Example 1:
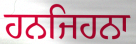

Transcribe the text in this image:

ਹਨਜਿਹਨਾ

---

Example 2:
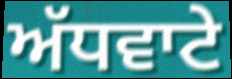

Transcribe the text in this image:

ਅੱਧਵਾਟੇ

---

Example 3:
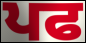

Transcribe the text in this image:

ਪਫ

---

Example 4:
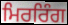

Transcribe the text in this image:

ਮਿਰਰਿੰਗ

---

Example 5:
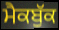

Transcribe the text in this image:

ਮੈਕਬੁੱਕ